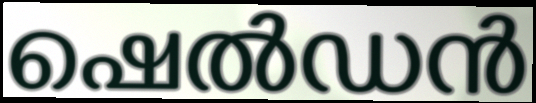
ഷെൽഡൻ